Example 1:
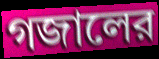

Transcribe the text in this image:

গজালের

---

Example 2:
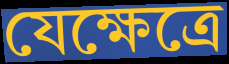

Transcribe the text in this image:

যেক্ষেত্রে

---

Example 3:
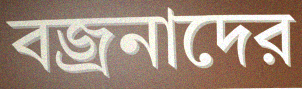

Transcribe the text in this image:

বজ্রনাদের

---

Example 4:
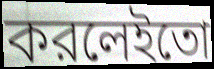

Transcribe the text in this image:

করলেইতো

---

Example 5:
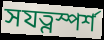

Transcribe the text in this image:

সযত্নস্পর্শ